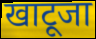
खाटूजा